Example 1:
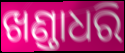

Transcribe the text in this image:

ଖଣ୍ଡାଧରି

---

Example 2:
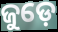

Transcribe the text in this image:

ଜୁଡ଼େ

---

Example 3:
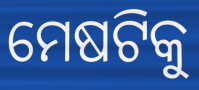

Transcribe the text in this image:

ମେଷଟିକୁ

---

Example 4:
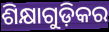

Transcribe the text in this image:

ଶିକ୍ଷାଗୁଡ଼ିକର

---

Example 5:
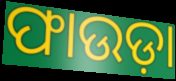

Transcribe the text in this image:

ଫାଉଡ଼ା